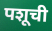
पशूची